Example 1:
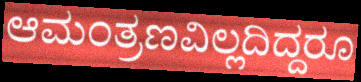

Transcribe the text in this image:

ಆಮಂತ್ರಣವಿಲ್ಲದಿದ್ದರೂ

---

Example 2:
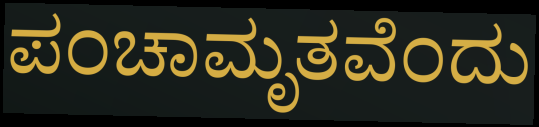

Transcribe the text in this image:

ಪಂಚಾಮೃತವೆಂದು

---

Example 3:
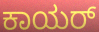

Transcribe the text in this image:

ಕಾಯರ್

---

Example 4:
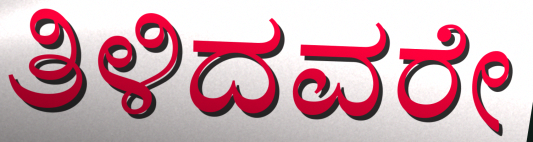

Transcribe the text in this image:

ತಿಳಿದವರೇ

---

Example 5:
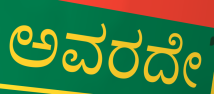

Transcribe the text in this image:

ಅವರದೇ